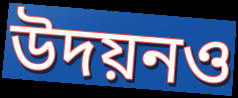
উদয়নও